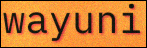
wayuni